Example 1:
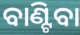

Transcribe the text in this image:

ବାଣ୍ଟିବା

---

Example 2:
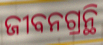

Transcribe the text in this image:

ଜୀବନଗ୍ରନ୍ଥି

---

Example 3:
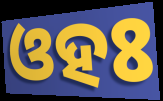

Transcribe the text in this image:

ଓହଃ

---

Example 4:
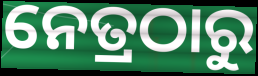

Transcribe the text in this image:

ନେତ୍ରଠାରୁ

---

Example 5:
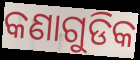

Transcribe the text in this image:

କଣାଗୁଡିକ